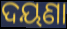
ଦୟଣା